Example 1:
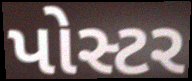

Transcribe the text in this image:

પોસ્ટર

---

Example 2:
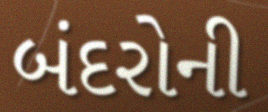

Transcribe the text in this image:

બંદરોની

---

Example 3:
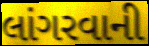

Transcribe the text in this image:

લાંગરવાની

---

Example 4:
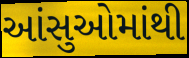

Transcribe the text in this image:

આંસુઓમાંથી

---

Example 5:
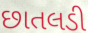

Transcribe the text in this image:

છાતલડી